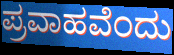
ಪ್ರವಾಹವೆಂದು